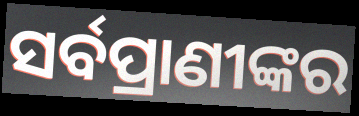
ସର୍ବପ୍ରାଣୀଙ୍କର